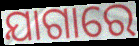
ଯାଗାରେ